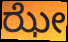
ಝೇ